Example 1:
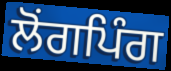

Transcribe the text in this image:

ਲੋਂਗਪਿੰਗ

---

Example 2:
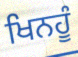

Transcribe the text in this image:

ਖਿਨਹੂੰ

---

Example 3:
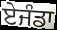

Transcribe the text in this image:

ਏਜੰਡਾ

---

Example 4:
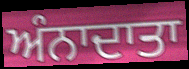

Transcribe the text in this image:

ਅੰਨਾਦਾਤਾ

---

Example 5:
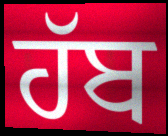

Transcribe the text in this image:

ਹੱਬ